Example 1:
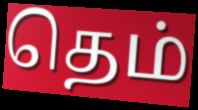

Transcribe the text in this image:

தெம்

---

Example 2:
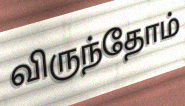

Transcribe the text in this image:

விருந்தோம்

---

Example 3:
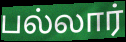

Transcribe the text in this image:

பல்லார்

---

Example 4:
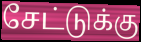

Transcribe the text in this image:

சேட்டுக்கு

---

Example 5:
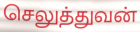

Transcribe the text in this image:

செலுத்துவன்